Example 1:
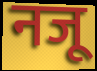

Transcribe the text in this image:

नजू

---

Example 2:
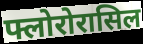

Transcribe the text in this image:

फ्लोरोरासिल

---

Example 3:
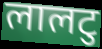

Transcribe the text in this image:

लालटु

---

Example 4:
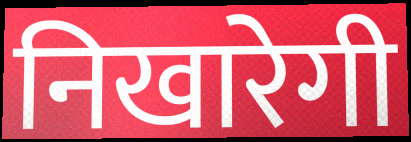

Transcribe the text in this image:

निखारेगी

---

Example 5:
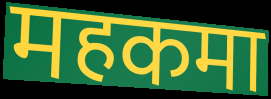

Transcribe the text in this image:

महकमा